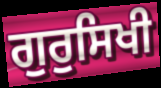
ਗੁਰੁਸਿਖੀ